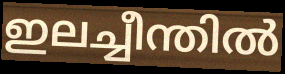
ഇലച്ചീന്തിൽ